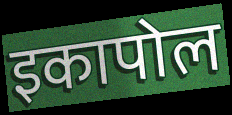
इकापोल